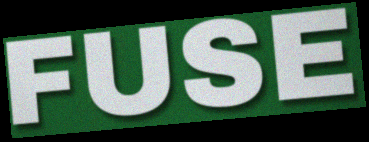
FUSE